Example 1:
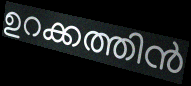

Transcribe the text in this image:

ഉറക്കത്തിൻ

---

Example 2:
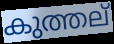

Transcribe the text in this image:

കുത്തല്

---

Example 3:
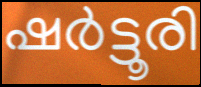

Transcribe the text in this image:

ഷർട്ടൂരി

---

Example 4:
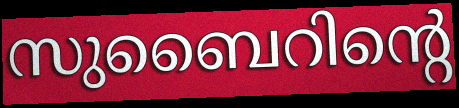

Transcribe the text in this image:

സുബൈറിന്റെ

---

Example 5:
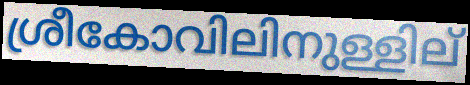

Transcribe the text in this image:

ശ്രീകോവിലിനുള്ളില്